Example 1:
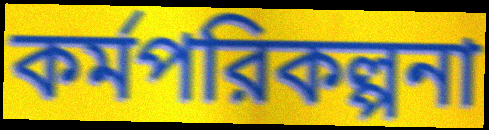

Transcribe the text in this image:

কর্মপরিকল্পনা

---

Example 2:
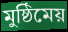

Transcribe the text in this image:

মুষ্ঠিমেয়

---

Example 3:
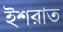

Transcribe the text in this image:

ইশরাত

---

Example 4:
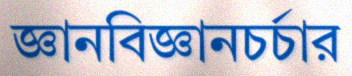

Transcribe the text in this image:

জ্ঞানবিজ্ঞানচর্চার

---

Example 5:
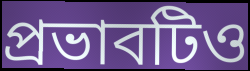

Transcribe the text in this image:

প্রভাবটিও